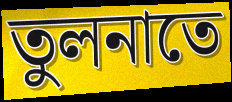
তুলনাতে